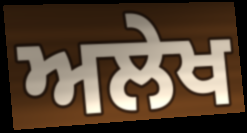
ਅਲੇਖ